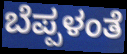
ಬೆಪ್ಪಳಂತೆ